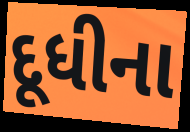
દૂધીના